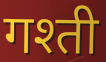
गश्ती